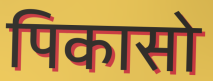
पिकासो